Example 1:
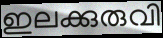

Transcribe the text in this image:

ഇലക്കുരുവി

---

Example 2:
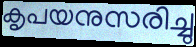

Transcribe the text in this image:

കൃപയനുസരിച്ചു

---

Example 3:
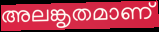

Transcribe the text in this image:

അലങ്കൃതമാണ്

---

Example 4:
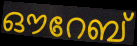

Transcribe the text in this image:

ഔറേബ്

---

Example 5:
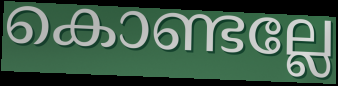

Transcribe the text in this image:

കൊണ്ടല്ലേ